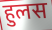
हुलस